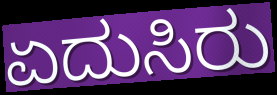
ಏದುಸಿರು